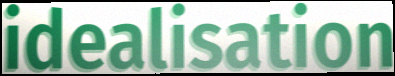
idealisation